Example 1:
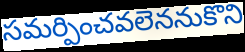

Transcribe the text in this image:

సమర్పించవలెననుకొని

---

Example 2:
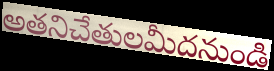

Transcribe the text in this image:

అతనిచేతులమీదనుండి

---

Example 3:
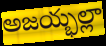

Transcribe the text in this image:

అజయ్భల్లా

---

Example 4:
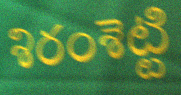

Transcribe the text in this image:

శిరంశెట్టి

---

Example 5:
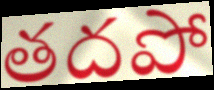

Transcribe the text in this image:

తదపో